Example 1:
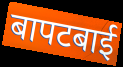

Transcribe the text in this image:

बापटबाई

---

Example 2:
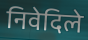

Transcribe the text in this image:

निवेदिले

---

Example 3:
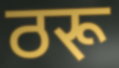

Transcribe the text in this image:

ठरू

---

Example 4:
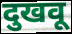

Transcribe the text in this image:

दुखवू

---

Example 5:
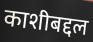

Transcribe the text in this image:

काशीबद्दल